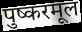
पुष्करमूल